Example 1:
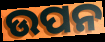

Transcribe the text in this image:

ଉପନ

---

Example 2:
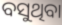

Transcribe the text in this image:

ବସୁଥିବା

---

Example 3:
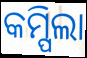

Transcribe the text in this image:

କମ୍ପିଲା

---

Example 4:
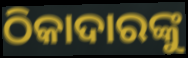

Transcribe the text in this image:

ଠିକାଦାରଙ୍କୁ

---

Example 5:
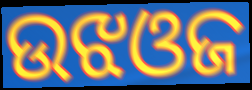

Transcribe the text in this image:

ଉଝଓଜ